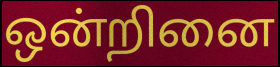
ஒன்றினை